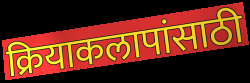
क्रियाकलापांसाठी